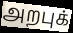
அறபுக்